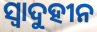
ସ୍ୱାଦୁହୀନ